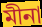
মীনা